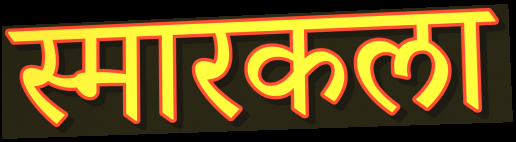
स्मारकला